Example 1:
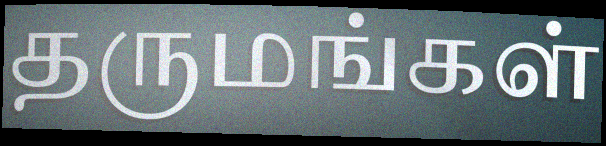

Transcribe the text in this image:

தருமங்கள்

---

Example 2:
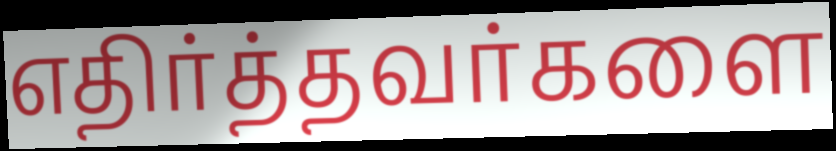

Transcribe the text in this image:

எதிர்த்தவர்களை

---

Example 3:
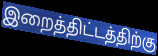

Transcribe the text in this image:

இறைத்திட்டத்திற்கு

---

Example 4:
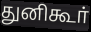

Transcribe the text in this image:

துனிகூர்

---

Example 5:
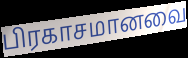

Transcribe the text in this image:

பிரகாசமானவை